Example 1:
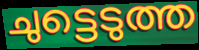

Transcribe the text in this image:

ചുട്ടെടുത്ത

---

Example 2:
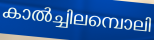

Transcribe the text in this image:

കാൽച്ചിലമ്പൊലി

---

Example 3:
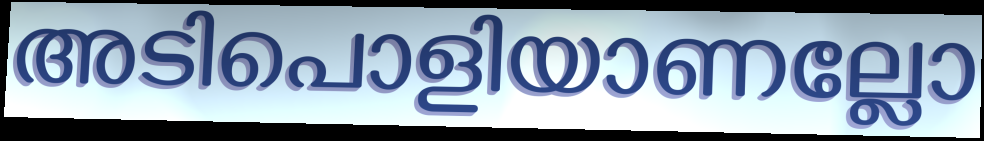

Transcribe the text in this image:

അടിപൊളിയാണല്ലോ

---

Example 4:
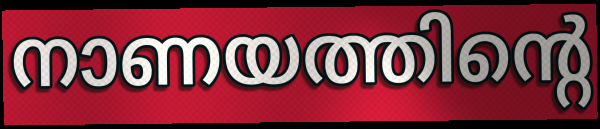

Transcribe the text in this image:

നാണയത്തിന്റെ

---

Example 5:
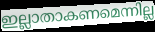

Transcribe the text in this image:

ഇല്ലാതാകണമെന്നില്ല